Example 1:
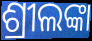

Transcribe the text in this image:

ଶ୍ରୀଲଙ୍କା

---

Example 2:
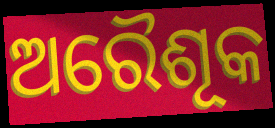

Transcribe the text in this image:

ଅରୈଶୂକ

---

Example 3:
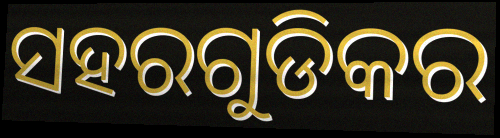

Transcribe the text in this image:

ସହରଗୁଡିକର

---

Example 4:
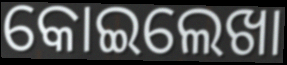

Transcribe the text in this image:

କୋଇଲେଖା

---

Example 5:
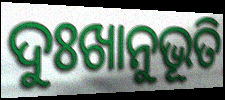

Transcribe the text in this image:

ଦୁଃଖାନୁଭୂତି